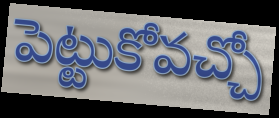
పెట్టుకోవచ్చో